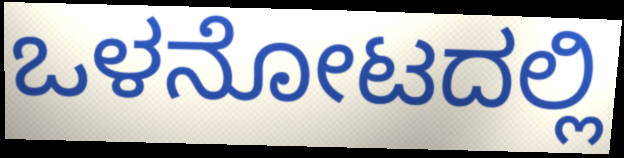
ಒಳನೋಟದಲ್ಲಿ